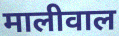
मालीवाल